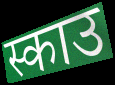
स्काउ